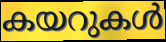
കയറുകൾ